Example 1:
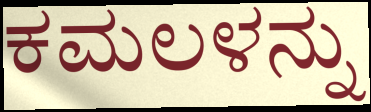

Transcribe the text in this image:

ಕಮಲಳನ್ನು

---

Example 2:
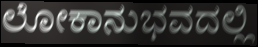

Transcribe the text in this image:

ಲೋಕಾನುಭವದಲ್ಲಿ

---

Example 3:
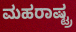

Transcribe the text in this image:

ಮಹರಾಷ್ಟ್ರ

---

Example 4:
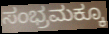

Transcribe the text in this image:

ಸಂಭ್ರಮಕ್ಕೂ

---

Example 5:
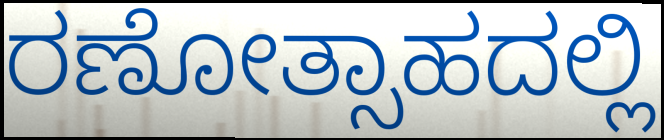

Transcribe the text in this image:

ರಣೋತ್ಸಾಹದಲ್ಲಿ